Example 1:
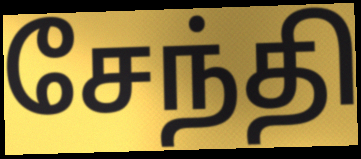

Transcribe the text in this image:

சேந்தி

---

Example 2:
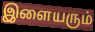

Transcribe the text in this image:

இளையரும்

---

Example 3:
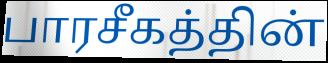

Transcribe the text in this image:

பாரசீகத்தின்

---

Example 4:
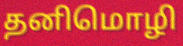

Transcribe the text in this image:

தனிமொழி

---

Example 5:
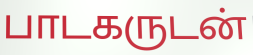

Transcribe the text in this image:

பாடகருடன்